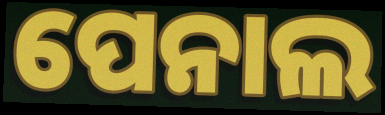
ପେନାଲ